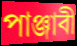
পাঞ্জাবী